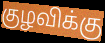
குழவிக்கு